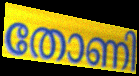
തോണി